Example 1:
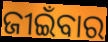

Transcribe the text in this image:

ଜୀଇଁବାର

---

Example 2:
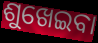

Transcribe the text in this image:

ଶୁଖେଇବା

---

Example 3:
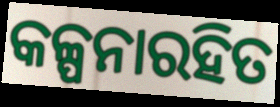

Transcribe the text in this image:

କଳ୍ପନାରହିତ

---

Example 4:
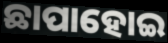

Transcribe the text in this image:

ଛାପାହୋଇ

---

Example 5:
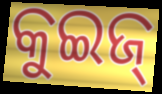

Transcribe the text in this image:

କୁଇଜ୍